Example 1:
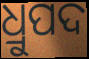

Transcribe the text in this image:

ଧ୍ରୁପଦ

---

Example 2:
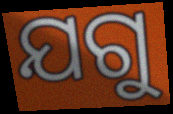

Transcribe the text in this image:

ଯଗୁ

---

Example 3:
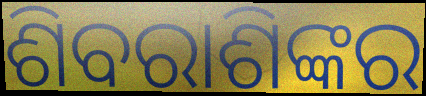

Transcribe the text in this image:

ଶିବରାଶିଙ୍କର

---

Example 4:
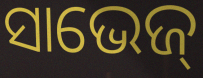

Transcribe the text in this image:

ସାଭେଜ୍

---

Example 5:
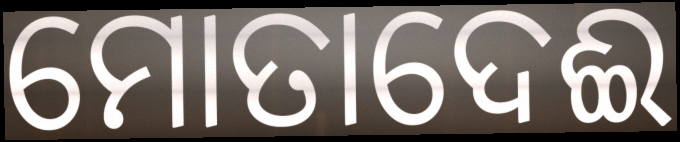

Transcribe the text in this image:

ମୋତାଦେଈ